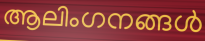
ആലിംഗനങ്ങൾ